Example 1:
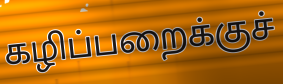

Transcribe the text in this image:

கழிப்பறைக்குச்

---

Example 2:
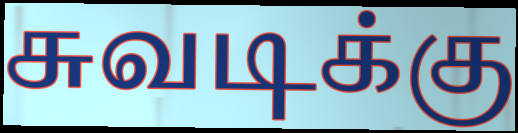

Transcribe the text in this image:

சுவடிக்கு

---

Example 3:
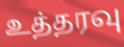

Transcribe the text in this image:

உத்தரவு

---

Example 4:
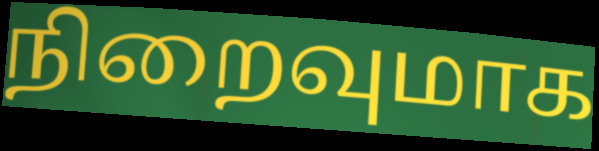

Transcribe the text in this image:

நிறைவுமாக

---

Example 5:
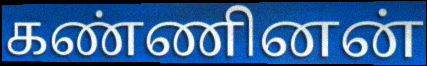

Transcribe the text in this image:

கண்ணினன்